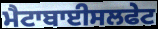
ਮੈਟਾਬਾਈਸਲਫੇਟ